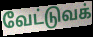
வேட்டுவக்